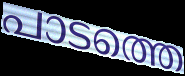
പാടത്തെ